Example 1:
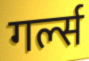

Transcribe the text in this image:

गर्ल्स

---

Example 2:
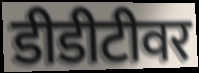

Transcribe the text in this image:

डीडीटीवर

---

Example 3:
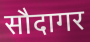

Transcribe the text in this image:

सौदागर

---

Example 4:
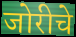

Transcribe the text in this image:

जोरीचे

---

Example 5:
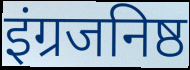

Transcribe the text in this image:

इंग्रजनिष्ठ